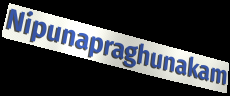
Nipunapraghunakam